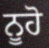
ਨੂਹੋ